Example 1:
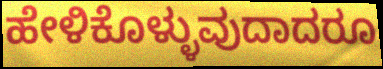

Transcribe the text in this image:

ಹೇಳಿಕೊಳ್ಳುವುದಾದರೂ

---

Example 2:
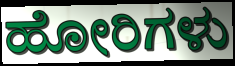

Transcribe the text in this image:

ಹೋರಿಗಳು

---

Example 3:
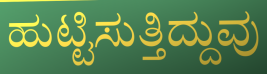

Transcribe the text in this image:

ಹುಟ್ಟಿಸುತ್ತಿದ್ದುವು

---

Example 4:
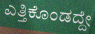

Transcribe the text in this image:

ಎತ್ತಿಕೊಂಡದ್ದೇ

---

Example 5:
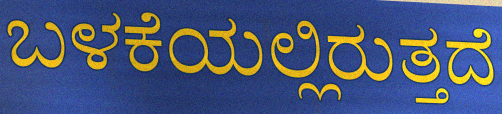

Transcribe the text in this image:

ಬಳಕೆಯಲ್ಲಿರುತ್ತದೆ